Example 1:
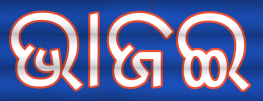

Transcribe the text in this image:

ଭାଜଇ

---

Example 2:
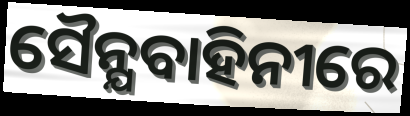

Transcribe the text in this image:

ସୈନ୍ଯବାହିନୀରେ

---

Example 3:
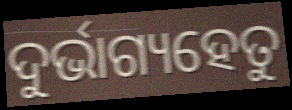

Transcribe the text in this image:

ଦୁର୍ଭାଗ୍ୟହେତୁ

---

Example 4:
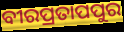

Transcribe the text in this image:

ବୀରପ୍ରତାପପୁର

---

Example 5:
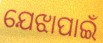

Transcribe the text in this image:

ଯେଝାପାଇଁ